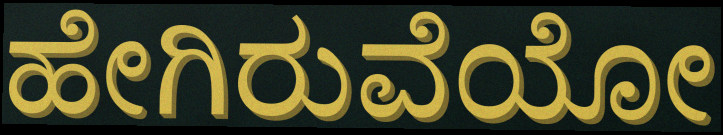
ಹೇಗಿರುವೆಯೋ